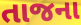
તાજના